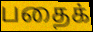
பதைக்